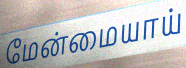
மேன்மையாய்